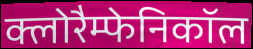
क्लोरैम्फेनिकॉल